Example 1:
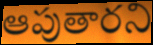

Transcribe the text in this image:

ఆపుతారని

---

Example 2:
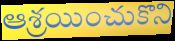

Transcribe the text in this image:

ఆశ్రయించుకొని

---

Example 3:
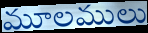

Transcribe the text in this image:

మూలములు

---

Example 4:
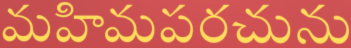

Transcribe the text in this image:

మహిమపరచును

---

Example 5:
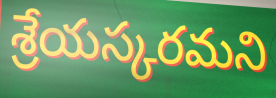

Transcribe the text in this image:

శ్రేయస్కరమని